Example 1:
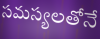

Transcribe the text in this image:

సమస్యలతోనే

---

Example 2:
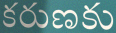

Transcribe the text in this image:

కరుణకు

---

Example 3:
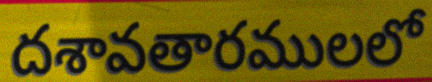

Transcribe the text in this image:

దశావతారములలో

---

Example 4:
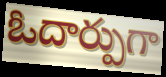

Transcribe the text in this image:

ఓదార్పుగా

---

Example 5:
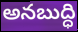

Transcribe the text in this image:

అనబుద్ధి